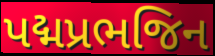
પદ્મપ્રભજિન